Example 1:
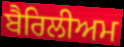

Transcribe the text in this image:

ਬੈਰਿਲੀਅਮ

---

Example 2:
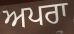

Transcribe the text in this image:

ਅਪਰਾ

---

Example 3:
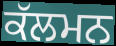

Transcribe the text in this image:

ਕੱਲਮਨ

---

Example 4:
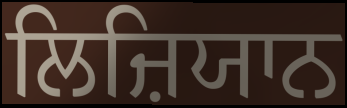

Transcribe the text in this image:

ਲਿਜ਼ਿਯਾਨ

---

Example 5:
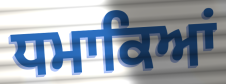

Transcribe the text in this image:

ਧਮਾਕਿਆਂ